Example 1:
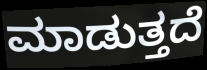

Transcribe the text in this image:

ಮಾಡುತ್ತದೆ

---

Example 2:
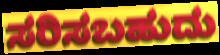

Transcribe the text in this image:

ಸರಿಸಬಹುದು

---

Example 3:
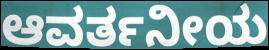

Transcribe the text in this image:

ಆವರ್ತನೀಯ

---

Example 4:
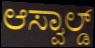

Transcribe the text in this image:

ಆಸ್ವಾಲ್ಡ್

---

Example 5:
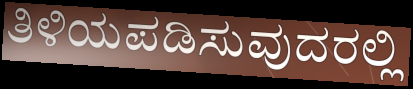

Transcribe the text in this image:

ತಿಳಿಯಪಡಿಸುವುದರಲ್ಲಿ